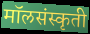
मॉलसंस्कृती